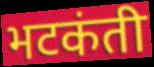
भटकंती